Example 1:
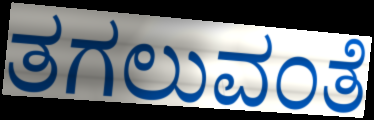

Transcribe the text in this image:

ತಗಲುವಂತೆ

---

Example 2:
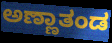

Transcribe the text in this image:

ಅಣ್ಣಾತಂಡ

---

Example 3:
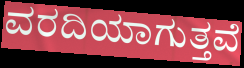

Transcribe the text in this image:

ವರದಿಯಾಗುತ್ತವೆ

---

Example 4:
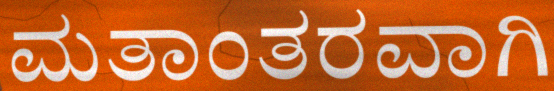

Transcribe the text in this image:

ಮತಾಂತರವಾಗಿ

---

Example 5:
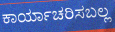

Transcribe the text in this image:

ಕಾರ್ಯಾಚರಿಸಬಲ್ಲ